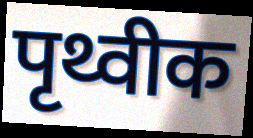
पृथ्वीक